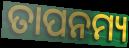
ତାପନମ୍ୟ